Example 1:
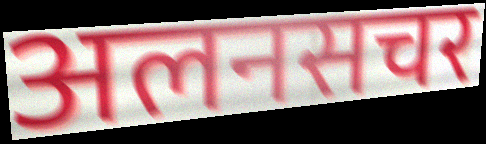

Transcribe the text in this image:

अलनसचर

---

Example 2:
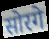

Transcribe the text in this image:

सोरगे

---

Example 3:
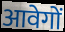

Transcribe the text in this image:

आवेगों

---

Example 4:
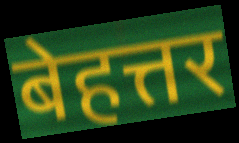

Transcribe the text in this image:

बेहत्तर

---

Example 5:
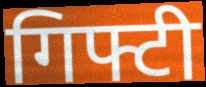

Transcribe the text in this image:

गिफ्टी